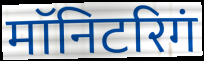
मॉनिटरिगं